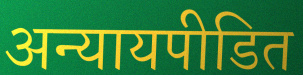
अन्यायपीडित